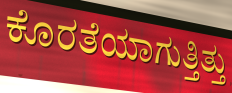
ಕೊರತೆಯಾಗುತ್ತಿತ್ತು